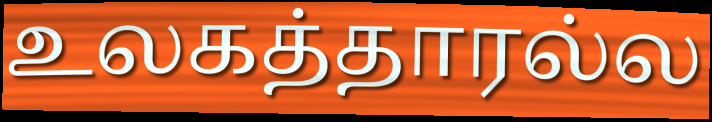
உலகத்தாரல்ல